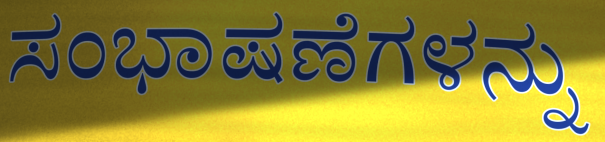
ಸಂಭಾಷಣೆಗಳನ್ನು